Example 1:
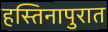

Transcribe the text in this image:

हस्तिनापुरात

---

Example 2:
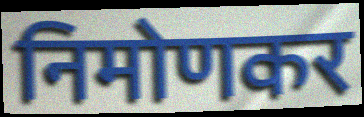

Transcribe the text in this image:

निमोणकर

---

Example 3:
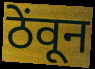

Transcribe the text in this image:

ठेंवून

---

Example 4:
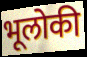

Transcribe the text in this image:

भूलोकी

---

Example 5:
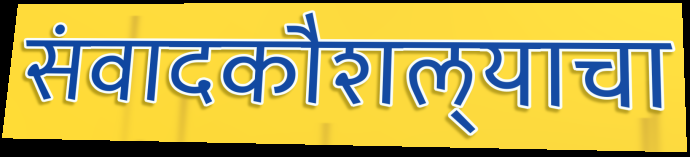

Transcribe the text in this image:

संवादकौशल्याचा